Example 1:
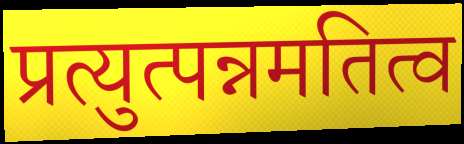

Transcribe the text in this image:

प्रत्युत्पन्नमतित्व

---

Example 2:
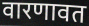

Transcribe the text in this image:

वारणावत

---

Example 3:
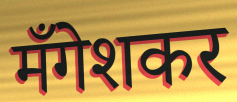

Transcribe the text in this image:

मँगेशकर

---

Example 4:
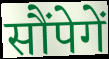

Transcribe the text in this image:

सौंपेगें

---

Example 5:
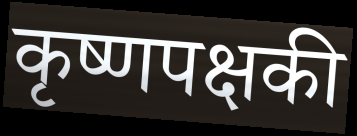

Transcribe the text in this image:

कृष्णपक्षकी